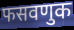
फसवणुक